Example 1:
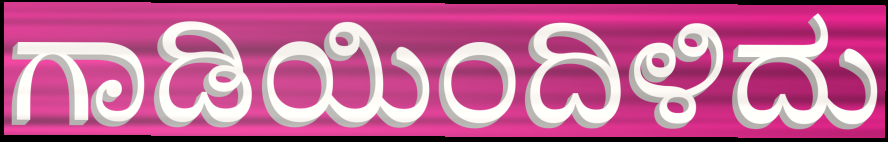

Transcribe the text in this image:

ಗಾಡಿಯಿಂದಿಳಿದು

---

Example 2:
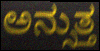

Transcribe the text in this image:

ಅನ್ಸುತ್ತ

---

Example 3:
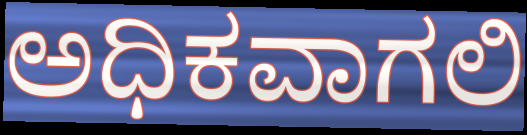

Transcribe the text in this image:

ಅಧಿಕವಾಗಲಿ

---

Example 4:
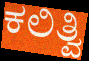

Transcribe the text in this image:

ಕಲಿತ್ವಿ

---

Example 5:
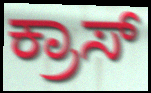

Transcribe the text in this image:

ಕ್ರಾಸ್